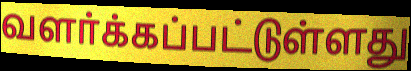
வளர்க்கப்பட்டுள்ளது